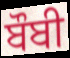
ਬੌਬੀ